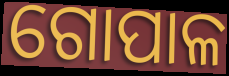
ଗୋପାଳ